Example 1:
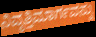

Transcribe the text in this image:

ನಿವೃತ್ತಿಮಾರ್ಗವನ್ನು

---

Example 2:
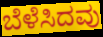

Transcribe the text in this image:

ಬೆಳೆಸಿದವು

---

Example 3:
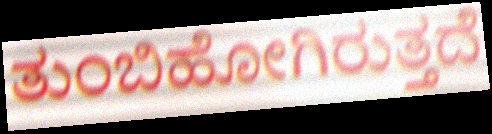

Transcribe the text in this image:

ತುಂಬಿಹೋಗಿರುತ್ತದೆ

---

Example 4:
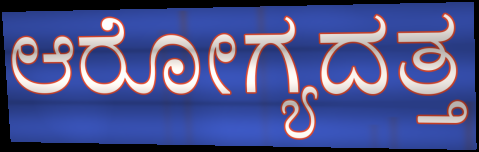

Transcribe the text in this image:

ಆರೋಗ್ಯದತ್ತ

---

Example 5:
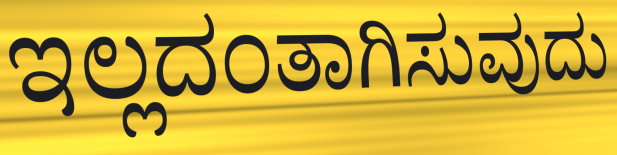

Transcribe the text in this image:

ಇಲ್ಲದಂತಾಗಿಸುವುದು